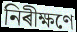
নিৰীক্ষণে